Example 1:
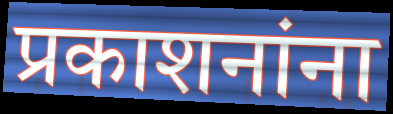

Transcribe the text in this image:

प्रकाशनांना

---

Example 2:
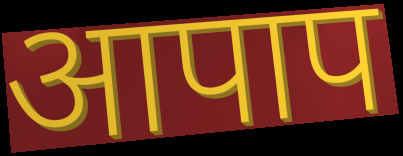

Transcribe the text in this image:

आपाप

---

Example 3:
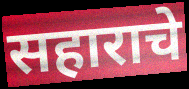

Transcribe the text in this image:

सहाराचे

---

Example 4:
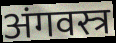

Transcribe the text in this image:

अंगवस्त्र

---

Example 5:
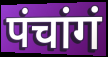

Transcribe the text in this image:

पंचांगं